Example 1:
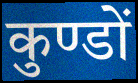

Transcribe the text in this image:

कुण्डों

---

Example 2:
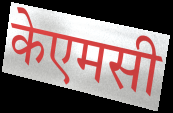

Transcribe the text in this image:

केएमसी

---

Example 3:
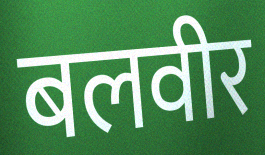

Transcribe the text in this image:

बलवीर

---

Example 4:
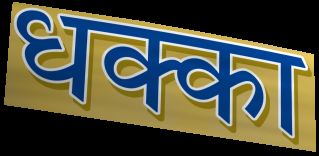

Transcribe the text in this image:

धक्का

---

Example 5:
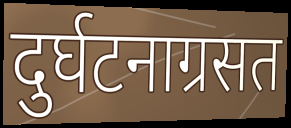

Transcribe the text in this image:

दुर्घटनाग्रसत